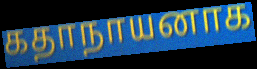
கதாநாயனாக